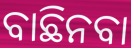
ବାଛିନବା